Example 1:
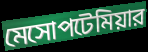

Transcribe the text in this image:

মেসোপটেমিয়ার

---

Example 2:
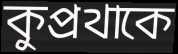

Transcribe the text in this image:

কুপ্রথাকে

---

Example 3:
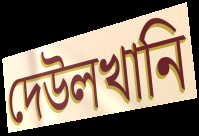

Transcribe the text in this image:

দেউলখানি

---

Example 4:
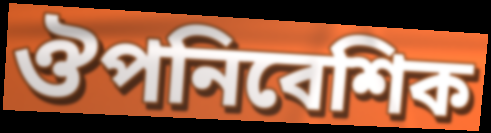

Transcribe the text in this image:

ঔপনিবেশিক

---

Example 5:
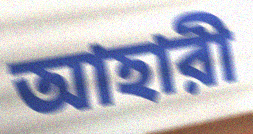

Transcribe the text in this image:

আহারী